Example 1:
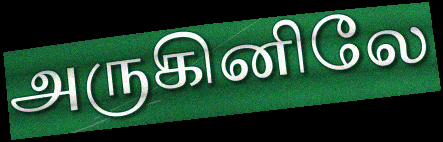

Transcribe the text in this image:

அருகினிலே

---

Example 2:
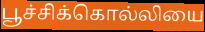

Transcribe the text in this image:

பூச்சிக்கொல்லியை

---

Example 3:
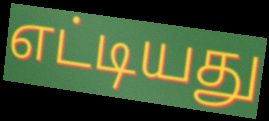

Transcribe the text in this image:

எட்டியது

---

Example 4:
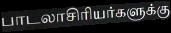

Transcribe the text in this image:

பாடலாசிரியர்களுக்கு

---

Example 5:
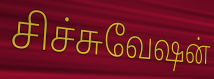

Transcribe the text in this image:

சிச்சுவேஷன்